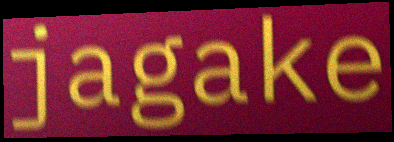
jagake